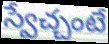
స్వేచ్చంటే